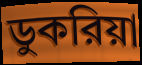
ডুকরিয়া